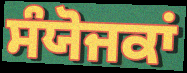
ਸੰਯੋਜਕਾਂ